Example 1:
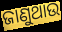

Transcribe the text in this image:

ଜାଣୁଥାଉ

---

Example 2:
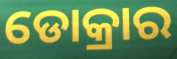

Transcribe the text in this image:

ଡୋକ୍ରାର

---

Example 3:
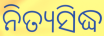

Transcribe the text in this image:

ନିତ୍ୟସିଦ୍ଧ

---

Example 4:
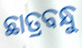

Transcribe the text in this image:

ଛାତ୍ରବନ୍ଧୁ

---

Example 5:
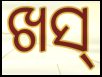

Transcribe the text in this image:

ଖସ୍